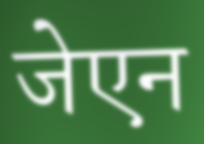
जेएन